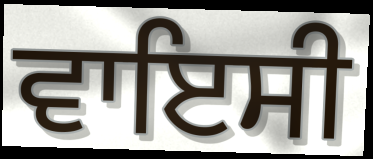
ਵਾਇਸੀ